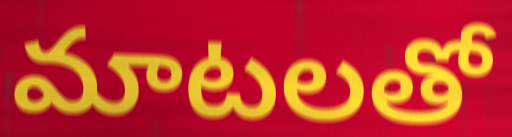
మాటలతో